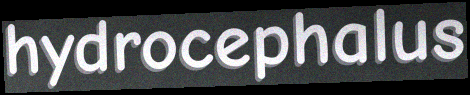
hydrocephalus